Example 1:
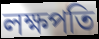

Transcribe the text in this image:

লক্ষপতি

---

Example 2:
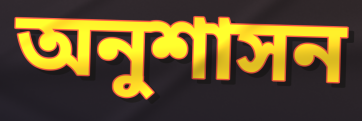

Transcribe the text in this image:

অনুশাসন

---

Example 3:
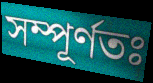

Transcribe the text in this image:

সম্পূর্ণতঃ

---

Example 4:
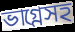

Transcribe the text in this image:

ভাগ্নেসহ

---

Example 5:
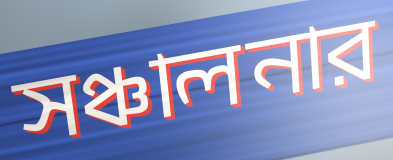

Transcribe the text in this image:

সঞ্চালনার